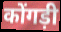
कोंगड़ी